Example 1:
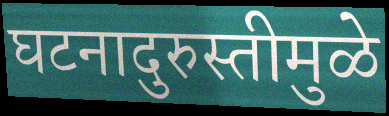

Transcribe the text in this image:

घटनादुरुस्तीमुळे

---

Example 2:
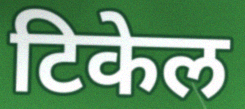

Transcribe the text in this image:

टिकेल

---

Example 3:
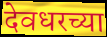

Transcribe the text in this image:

देवधरच्या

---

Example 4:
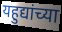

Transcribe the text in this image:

यहुद्यांच्या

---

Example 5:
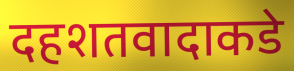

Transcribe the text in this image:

दहशतवादाकडे